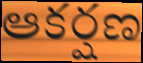
ఆకర్షణ